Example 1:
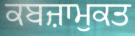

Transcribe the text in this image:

ਕਬਜ਼ਾਮੁਕਤ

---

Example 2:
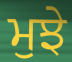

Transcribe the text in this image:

ਮੁਝੇ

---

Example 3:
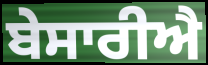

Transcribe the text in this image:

ਬੇਸਾਰੀਐ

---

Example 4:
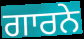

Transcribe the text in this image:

ਗਾਰਨੇ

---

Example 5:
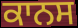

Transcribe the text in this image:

ਕਾਨਸ